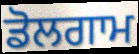
ਡੋਲਗਾਮ